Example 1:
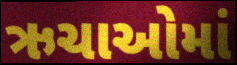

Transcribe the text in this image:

ઋચાઓમાં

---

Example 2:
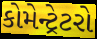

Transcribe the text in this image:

કોમેન્ટ્રેટરો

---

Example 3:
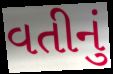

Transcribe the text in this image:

વતીનું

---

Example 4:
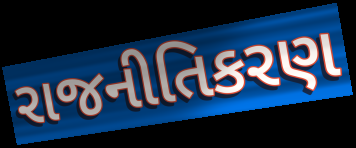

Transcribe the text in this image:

રાજનીતિકરણ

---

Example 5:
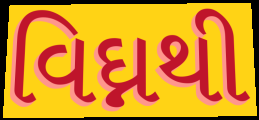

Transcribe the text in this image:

વિઘ્નથી